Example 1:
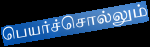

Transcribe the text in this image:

பெயர்ச்சொல்லும்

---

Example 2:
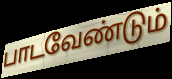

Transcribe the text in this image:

பாடவேண்டும்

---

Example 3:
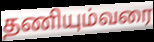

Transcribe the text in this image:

தணியும்வரை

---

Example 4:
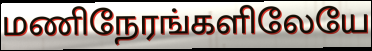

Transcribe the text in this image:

மணிநேரங்களிலேயே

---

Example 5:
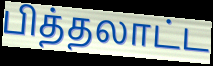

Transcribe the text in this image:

பித்தலாட்ட